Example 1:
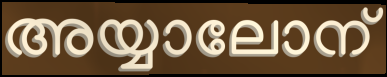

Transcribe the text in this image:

അയ്യാലോന്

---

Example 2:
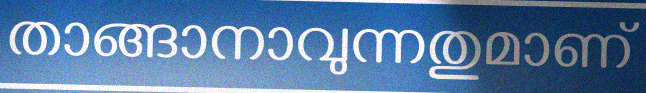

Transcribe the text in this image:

താങ്ങാനാവുന്നതുമാണ്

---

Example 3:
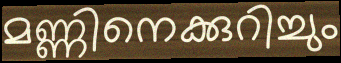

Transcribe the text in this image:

മണ്ണിനെക്കുറിച്ചും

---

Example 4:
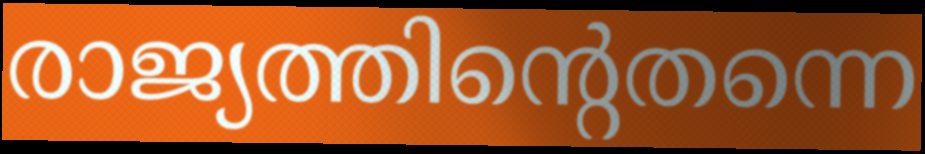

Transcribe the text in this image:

രാജ്യത്തിന്റെതന്നെ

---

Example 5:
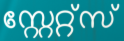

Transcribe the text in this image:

സ്റ്റേറ്റ്സ്